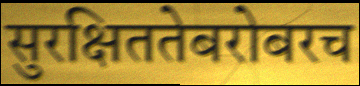
सुरक्षिततेबरोबरच